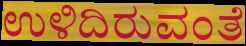
ಉಳಿದಿರುವಂತೆ